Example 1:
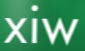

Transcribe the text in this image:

xiw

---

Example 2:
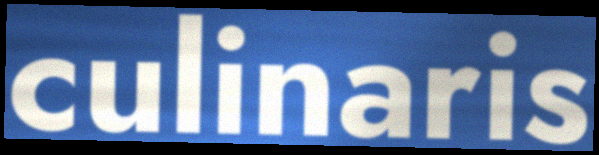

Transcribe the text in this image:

culinaris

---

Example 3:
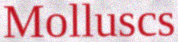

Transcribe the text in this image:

Molluscs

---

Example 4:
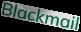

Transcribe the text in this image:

Blackmail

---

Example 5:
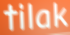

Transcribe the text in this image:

tilak